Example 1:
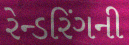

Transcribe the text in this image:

રેન્ડરિંગની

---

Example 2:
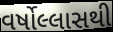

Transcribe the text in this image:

વર્ષોલ્લાસથી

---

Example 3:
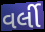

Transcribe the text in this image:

વર્લી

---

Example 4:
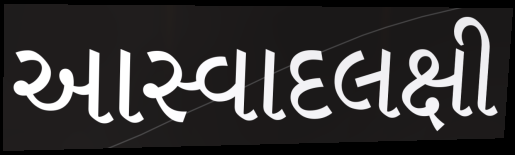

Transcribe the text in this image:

આસ્વાદલક્ષી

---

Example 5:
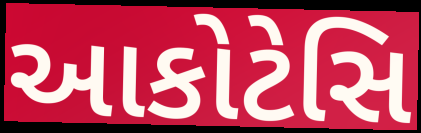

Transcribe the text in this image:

આકોટેસિ